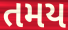
તમય